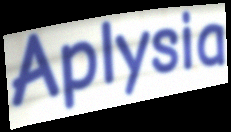
Aplysia